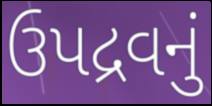
ઉપદ્રવનું